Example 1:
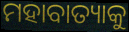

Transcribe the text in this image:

ମହାବାତ୍ୟାକୁ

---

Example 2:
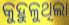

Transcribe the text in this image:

କୁହୁଳୁଥିଲା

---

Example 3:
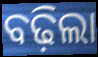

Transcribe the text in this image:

ବଢ଼ିଲା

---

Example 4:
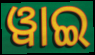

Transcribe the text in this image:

ୱାଇ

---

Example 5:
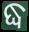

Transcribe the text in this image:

ଦ୍ଧ